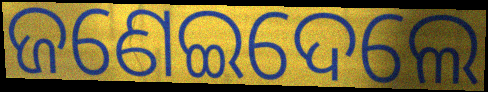
ଜଣେଇଦେଲେ